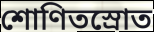
শোণিতস্রোত